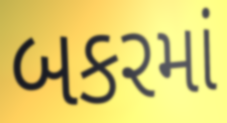
બકરમાં